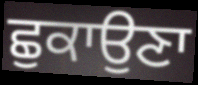
ਛੁਕਾਉਣਾ